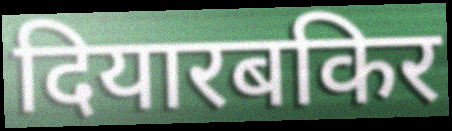
दियारबकिर